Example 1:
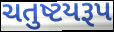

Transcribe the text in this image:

ચતુષ્ટયરૂપ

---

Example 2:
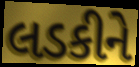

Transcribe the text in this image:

લડકીને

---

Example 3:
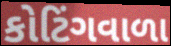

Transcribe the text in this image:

કોટિંગવાળા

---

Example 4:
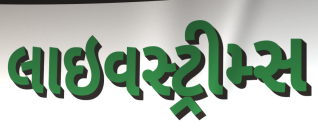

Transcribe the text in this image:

લાઇવસ્ટ્રીમ્સ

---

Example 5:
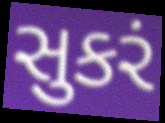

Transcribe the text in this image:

સુકરં